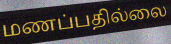
மணப்பதில்லை